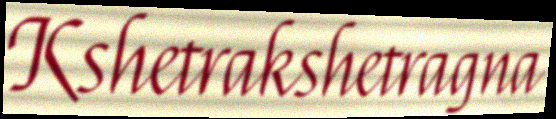
Kshetrakshetragna